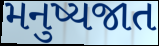
મનુષ્યજાત